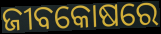
ଜୀବକୋଷରେ